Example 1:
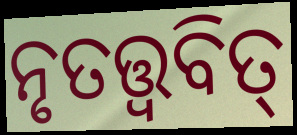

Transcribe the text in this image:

ନୃତତ୍ତ୍ୱବିତ୍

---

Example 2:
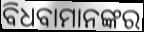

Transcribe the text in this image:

ବିଧବାମାନଙ୍କର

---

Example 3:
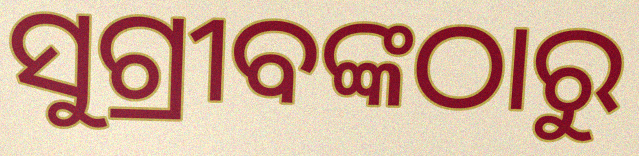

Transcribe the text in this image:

ସୁଗ୍ରୀବଙ୍କଠାରୁ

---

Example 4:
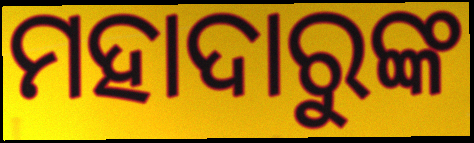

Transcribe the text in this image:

ମହାଦାରୁଙ୍କ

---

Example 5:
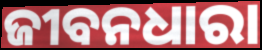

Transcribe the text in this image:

ଜୀବନଧାରା